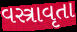
વસ્ત્રાવૃતા